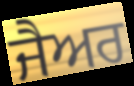
ਜੈਅਰ